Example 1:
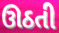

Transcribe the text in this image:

ઊઠતી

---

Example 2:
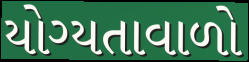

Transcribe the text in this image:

યોગ્યતાવાળો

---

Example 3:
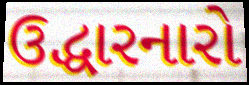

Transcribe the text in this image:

ઉદ્ધારનારો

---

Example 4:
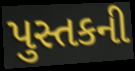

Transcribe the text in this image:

પુસ્તકની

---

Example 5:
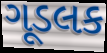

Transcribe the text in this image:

ગૂડલક